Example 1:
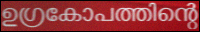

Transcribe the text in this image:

ഉഗ്രകോപത്തിന്റെ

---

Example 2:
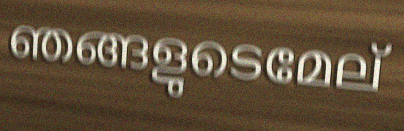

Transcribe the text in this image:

ഞങ്ങളുടെമേല്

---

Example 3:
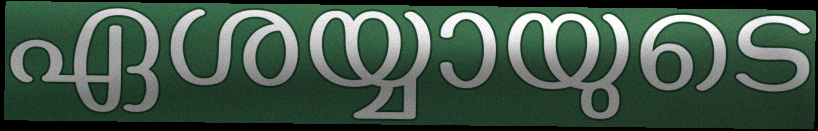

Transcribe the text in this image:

ഏശയ്യായുടെ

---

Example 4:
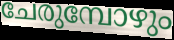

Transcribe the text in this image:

ചേരുമ്പോഴും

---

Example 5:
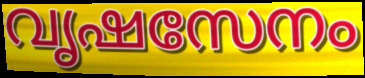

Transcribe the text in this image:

വൃഷസേനം